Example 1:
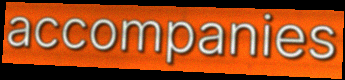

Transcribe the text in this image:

accompanies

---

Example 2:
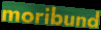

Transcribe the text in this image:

moribund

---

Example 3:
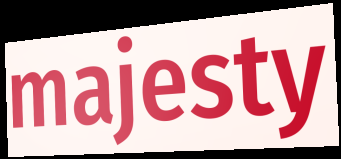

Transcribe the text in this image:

majesty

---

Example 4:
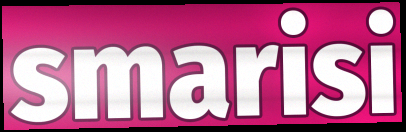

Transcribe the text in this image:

smarisi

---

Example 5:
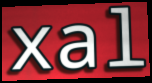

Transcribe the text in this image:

xal